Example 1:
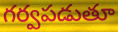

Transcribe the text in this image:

గర్వపడుతూ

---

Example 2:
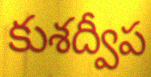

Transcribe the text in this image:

కుశద్వీప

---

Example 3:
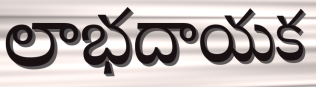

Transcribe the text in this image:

లాభదాయక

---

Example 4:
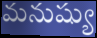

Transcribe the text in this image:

మనుష్యు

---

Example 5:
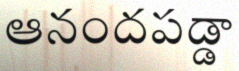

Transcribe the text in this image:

ఆనందపడ్డా